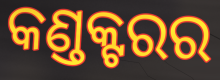
କଣ୍ଡକ୍ଟରର